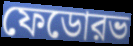
ফেডোরভ